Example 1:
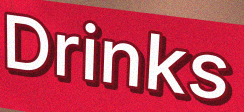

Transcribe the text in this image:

Drinks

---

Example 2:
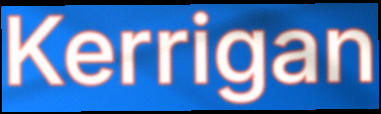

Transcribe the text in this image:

Kerrigan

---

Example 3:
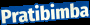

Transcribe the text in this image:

Pratibimba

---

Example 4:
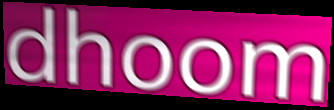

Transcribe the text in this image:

dhoom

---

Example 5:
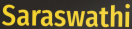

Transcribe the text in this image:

Saraswathi